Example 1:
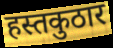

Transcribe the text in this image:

हस्तकुठार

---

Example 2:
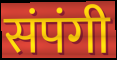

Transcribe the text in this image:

संपंगी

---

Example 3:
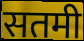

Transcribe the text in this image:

सतमी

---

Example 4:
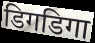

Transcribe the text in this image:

डिगडिगा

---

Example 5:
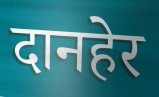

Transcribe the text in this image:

दानहेर